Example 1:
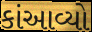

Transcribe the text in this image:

કાંઆવ્યો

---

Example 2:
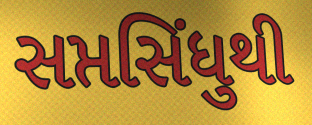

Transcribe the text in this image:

સપ્તસિંધુથી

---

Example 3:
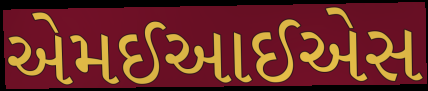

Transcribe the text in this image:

એમઈઆઈએસ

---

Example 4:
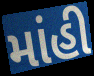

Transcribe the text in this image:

માંહી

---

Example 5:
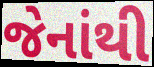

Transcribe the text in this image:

જેનાંથી